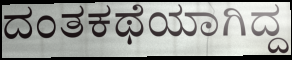
ದಂತಕಥೆಯಾಗಿದ್ದ